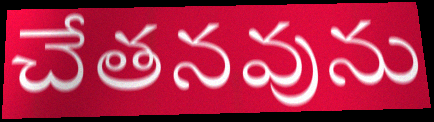
చేతనవును